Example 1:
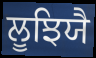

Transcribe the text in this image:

ਲੂਝਿਯੈ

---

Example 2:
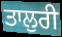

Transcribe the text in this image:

ਤਾਲੁਰੀ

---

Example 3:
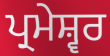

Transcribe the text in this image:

ਪ੍ਰਮੇਸ਼੍ਵਰ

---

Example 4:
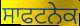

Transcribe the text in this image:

ਸਾਫਟਨੇਕ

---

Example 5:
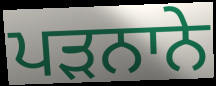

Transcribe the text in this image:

ਪੜਨਾਨੇ